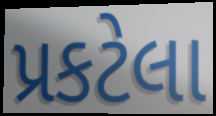
પ્રકટેલા